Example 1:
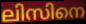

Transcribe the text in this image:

ലിസിനെ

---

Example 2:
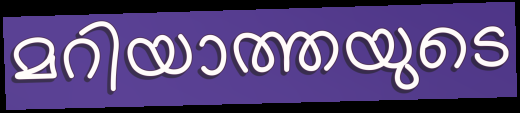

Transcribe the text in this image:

മറിയാത്തയുടെ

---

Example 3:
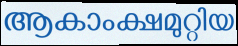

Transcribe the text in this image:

ആകാംക്ഷമുറ്റിയ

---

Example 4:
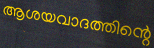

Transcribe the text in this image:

ആശയവാദത്തിന്റെ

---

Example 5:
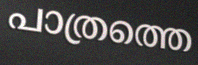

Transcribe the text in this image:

പാത്രത്തെ